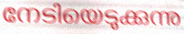
നേടിയെടുക്കുന്നു